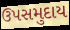
ઉપસમુદાય